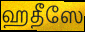
ஹதீஸே